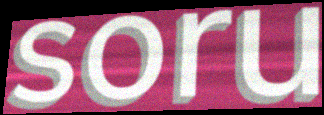
soru